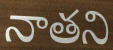
నాతని